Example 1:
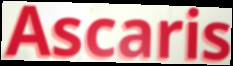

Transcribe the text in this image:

Ascaris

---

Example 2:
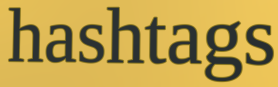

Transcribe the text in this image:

hashtags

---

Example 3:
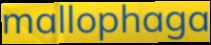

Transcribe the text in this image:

mallophaga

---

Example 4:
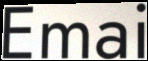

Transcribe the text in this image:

Emai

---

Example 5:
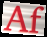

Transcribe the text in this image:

Af